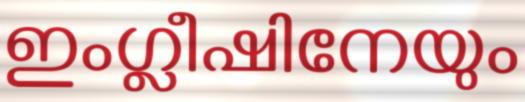
ഇംഗ്ലീഷിനേയും